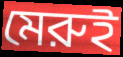
মেরুই